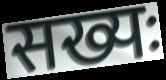
सख्यः